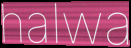
halwa